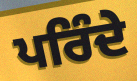
ਪਰਿੰਦੇ